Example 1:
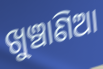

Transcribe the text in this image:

ଖୁଞ୍ଚାଣିଆ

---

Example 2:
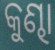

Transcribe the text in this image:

କୁଣ୍ଢା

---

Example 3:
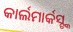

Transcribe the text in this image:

କାର୍ଲମାର୍କସ୍ଙ୍କ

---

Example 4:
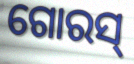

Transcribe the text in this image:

ଗୋରସ୍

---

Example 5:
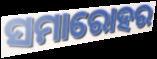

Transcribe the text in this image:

ସମାରୋହର